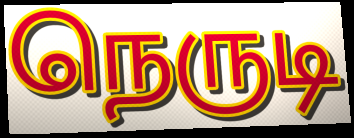
நெருடி